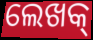
ଲେଖକ୍